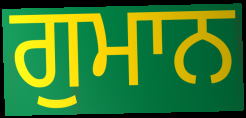
ਗੁਮਾਨ